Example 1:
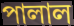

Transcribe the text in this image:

পালাল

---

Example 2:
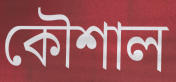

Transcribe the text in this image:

কৌশাল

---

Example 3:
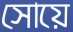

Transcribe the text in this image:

সোয়ে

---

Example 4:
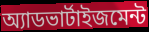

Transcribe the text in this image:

অ্যাডভার্টাইজমেন্ট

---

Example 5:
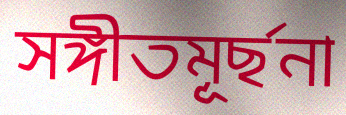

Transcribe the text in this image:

সঙ্গীতমূর্ছনা